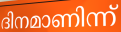
ദിനമാണിന്ന്